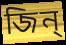
জিন্